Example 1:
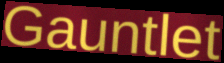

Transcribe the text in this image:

Gauntlet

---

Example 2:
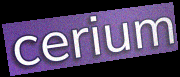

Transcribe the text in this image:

cerium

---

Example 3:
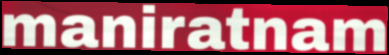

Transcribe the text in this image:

maniratnam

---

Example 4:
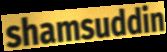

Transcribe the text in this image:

shamsuddin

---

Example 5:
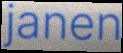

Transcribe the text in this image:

janen